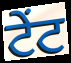
ਟੇਂਟ